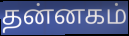
தன்னகம்